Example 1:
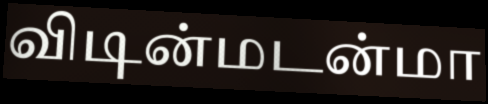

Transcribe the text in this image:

விடின்மடன்மா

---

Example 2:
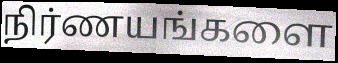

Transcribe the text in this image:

நிர்ணயங்களை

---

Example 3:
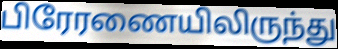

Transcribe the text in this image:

பிரேரணையிலிருந்து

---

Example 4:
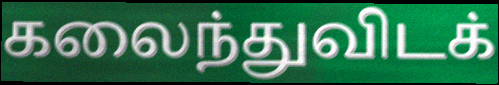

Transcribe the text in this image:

கலைந்துவிடக்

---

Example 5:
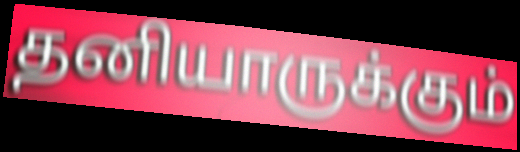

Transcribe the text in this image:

தனியாருக்கும்